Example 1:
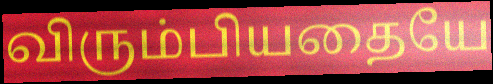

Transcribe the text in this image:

விரும்பியதையே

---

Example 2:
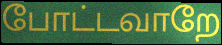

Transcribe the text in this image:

போட்டவாறே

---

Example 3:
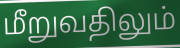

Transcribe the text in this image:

மீறுவதிலும்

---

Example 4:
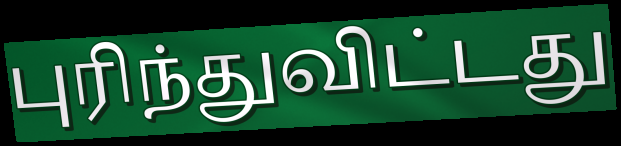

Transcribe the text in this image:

புரிந்துவிட்டது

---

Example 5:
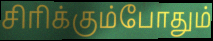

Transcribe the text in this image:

சிரிக்கும்போதும்